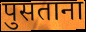
पुसताना